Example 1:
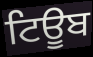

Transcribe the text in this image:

ਟਿਊੂਬ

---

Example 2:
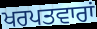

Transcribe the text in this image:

ਖਰਪਤਵਾਰਾਂ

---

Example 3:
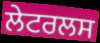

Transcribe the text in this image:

ਲੇਟਰਲਸ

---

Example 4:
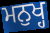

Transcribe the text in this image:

ਮਨੁਖ੍ਹ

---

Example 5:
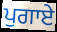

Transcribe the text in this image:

ਪੁਗਾਏ